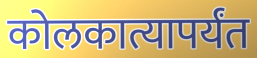
कोलकात्यापर्यंत